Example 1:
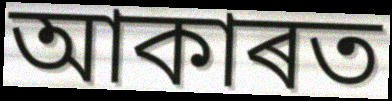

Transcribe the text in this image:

আকাৰত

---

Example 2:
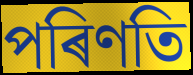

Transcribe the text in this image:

পৰিণতি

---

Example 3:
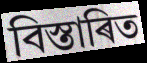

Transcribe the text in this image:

বিস্তাৰিত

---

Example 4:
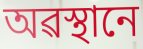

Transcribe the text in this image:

অৱস্থানে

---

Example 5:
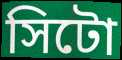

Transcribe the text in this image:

সিটো